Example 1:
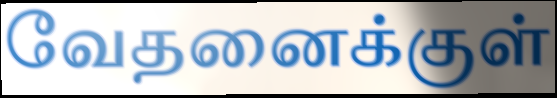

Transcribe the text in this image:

வேதனைக்குள்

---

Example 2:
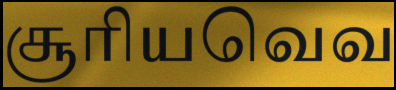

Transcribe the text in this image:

சூரியவெவ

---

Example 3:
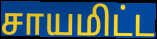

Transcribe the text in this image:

சாயமிட்ட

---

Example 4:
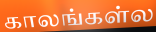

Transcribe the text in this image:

காலங்கள்ல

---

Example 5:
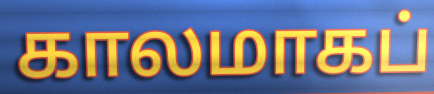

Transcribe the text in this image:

காலமாகப்